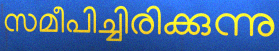
സമീപിച്ചിരിക്കുന്നു